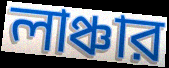
লাঞ্চার